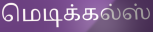
மெடிக்கல்ஸ்